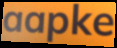
aapke